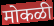
मोकळी